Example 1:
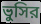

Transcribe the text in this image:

ভুসির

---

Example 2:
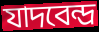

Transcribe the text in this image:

যাদবেন্দ্র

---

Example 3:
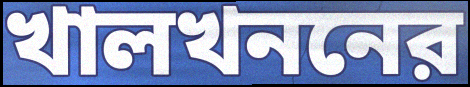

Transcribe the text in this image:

খালখননের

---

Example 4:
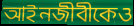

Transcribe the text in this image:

আইনজীবীকেও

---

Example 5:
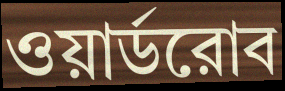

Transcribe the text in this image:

ওয়ার্ডরোব